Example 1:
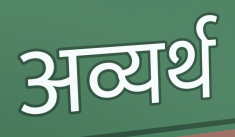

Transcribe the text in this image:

अव्यर्थ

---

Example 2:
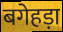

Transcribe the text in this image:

बगेहड़ा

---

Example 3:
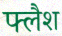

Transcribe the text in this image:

फ्लैश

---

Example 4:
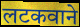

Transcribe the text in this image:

लटकवाने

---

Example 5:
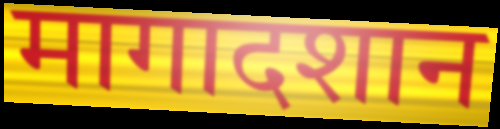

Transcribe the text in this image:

मागादशान